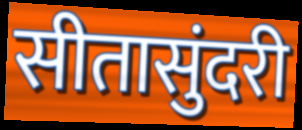
सीतासुंदरी